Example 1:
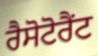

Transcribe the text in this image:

ਰੈਸੋਟੋਰੈਂਟ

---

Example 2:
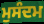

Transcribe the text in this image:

ਮੁਸੰਦਮ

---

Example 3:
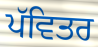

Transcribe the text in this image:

ਪੱਵਿਤਰ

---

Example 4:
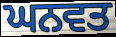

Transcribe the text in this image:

ਘਨਵਤ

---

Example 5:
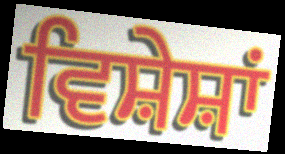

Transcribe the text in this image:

ਵਿਸ਼ੇਸ਼ਾਂ